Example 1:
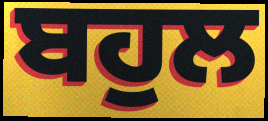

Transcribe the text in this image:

ਬਹੁਲ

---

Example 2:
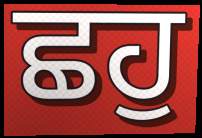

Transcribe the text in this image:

ਛਹੁ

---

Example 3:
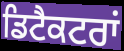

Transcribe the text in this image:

ਡਿਟੈਕਟਰਾਂ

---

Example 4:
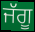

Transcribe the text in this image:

ਜੱਗੂ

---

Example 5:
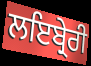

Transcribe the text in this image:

ਲਇਬ੍ਰੇਰੀ